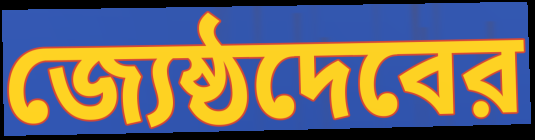
জ্যেষ্ঠদেবের